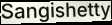
Sangishetty